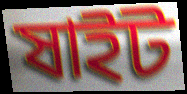
ষাইট